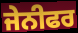
ਜੇਨੀਫਰ